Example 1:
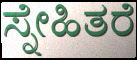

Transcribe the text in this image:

ಸ್ನೇಹಿತರೆ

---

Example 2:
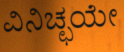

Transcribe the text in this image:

ವಿನಿಚ್ಛಯೇ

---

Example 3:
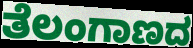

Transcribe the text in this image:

ತೆಲಂಗಾಣದ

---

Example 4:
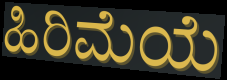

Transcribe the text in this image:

ಹಿರಿಮೆಯೆ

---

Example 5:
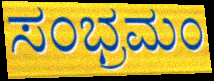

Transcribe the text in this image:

ಸಂಭ್ರಮಂ